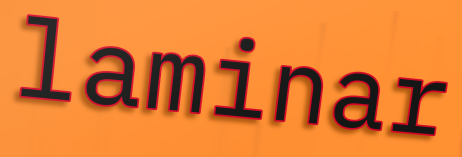
laminar